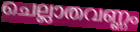
ചെല്ലാതവണ്ണം